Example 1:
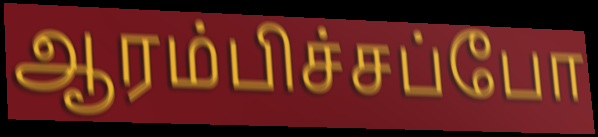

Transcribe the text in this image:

ஆரம்பிச்சப்போ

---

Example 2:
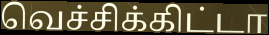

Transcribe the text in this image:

வெச்சிக்கிட்டா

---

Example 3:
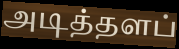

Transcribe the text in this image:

அடித்தளப்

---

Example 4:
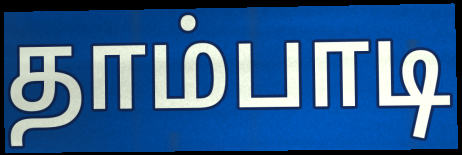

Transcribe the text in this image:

தாம்பாடி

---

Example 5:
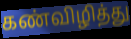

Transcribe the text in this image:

கண்விழித்து